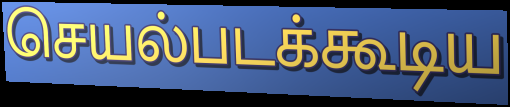
செயல்படக்கூடிய